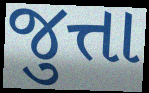
જુત્તા